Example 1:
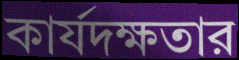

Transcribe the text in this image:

কার্যদক্ষতার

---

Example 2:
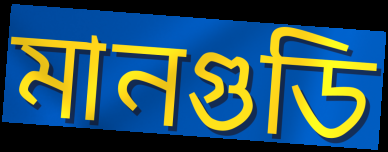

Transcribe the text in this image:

মানগুডি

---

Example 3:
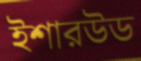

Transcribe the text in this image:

ইশারউড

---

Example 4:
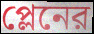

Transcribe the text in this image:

প্লেনের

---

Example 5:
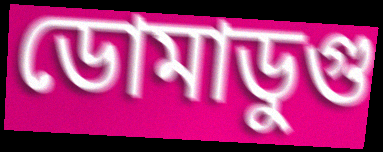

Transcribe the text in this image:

ডোমাডুগু